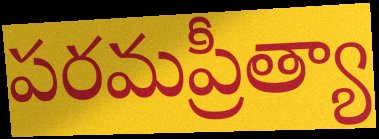
పరమప్రీత్యా